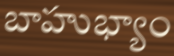
బాహుభ్యాం